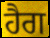
ਹੈਗ